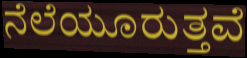
ನೆಲೆಯೂರುತ್ತವೆ